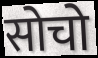
सोचो